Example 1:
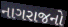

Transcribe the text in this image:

નાગરાજનો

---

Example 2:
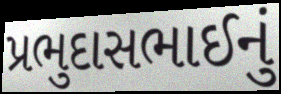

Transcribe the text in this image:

પ્રભુદાસભાઈનું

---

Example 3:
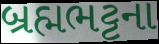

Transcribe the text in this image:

બ્રહ્મભટ્ટના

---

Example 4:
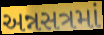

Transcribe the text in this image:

અન્નસત્રમાં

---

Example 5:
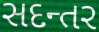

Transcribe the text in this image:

સદન્તર